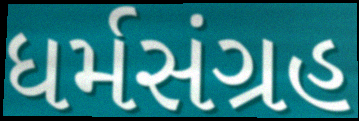
ધર્મસંગ્રહ